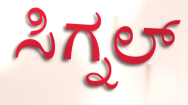
ಸಿಗ್ನಲ್